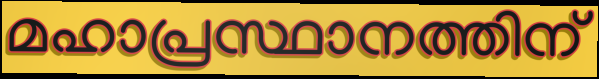
മഹാപ്രസ്ഥാനത്തിന്